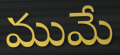
ముమే